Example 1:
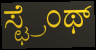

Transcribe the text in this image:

ಸ್ಟ್ರೆಂಥ್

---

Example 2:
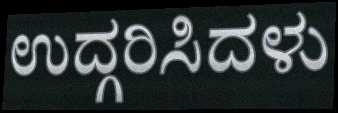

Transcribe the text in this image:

ಉದ್ಗರಿಸಿದಳು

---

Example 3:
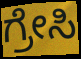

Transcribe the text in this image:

ಗ್ರೇಸಿ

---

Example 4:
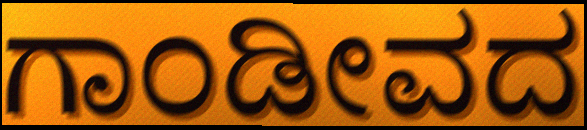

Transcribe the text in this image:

ಗಾಂಡೀವದ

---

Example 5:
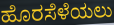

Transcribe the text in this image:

ಹೊರಸೆಳೆಯಲು